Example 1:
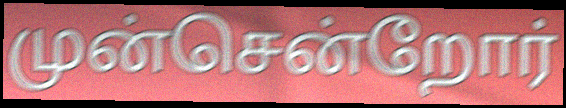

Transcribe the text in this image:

முன்சென்றோர்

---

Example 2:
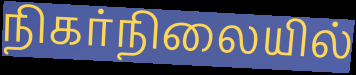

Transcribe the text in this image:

நிகர்நிலையில்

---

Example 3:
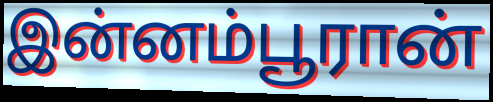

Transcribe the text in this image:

இன்னம்பூரான்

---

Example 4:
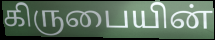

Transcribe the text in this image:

கிருபையின்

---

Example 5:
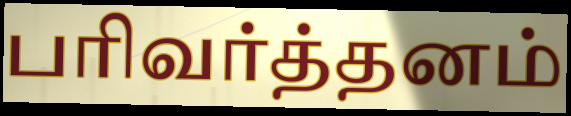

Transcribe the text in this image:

பரிவர்த்தனம்